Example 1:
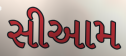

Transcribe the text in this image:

સીઆમ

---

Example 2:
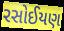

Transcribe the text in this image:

રસોઈયણ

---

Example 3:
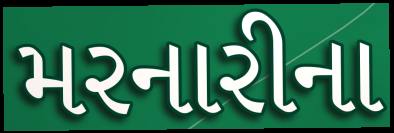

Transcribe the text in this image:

મરનારીના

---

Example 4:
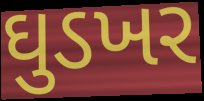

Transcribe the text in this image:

ઘુડખર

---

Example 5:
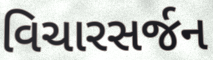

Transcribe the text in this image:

વિચારસર્જન